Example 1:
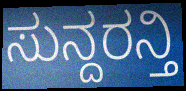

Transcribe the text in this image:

ಸುನ್ದರನ್ತಿ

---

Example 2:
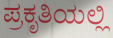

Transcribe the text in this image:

ಪ್ರಕೃತಿಯಲ್ಲಿ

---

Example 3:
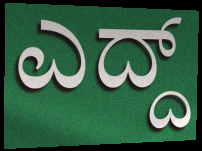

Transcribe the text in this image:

ಎದ್ದ್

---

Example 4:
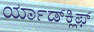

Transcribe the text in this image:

ರ್ಯಾಡ್‍ಕ್ಲಿಫ್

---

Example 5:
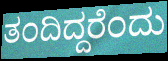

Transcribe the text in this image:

ತಂದಿದ್ದರೆಂದು